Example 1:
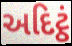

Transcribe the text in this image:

અદિટ્ઠં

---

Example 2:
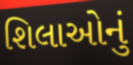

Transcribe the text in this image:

શિલાઓનું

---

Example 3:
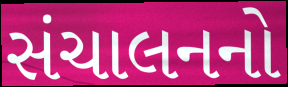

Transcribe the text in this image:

સંચાલનનો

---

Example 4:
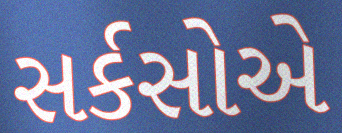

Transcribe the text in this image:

સર્કસોએ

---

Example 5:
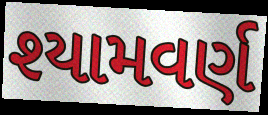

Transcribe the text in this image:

શ્યામવર્ણ